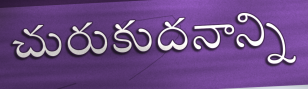
చురుకుదనాన్ని